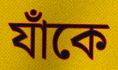
যাঁকে